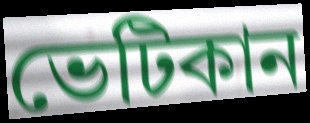
ভেটিকান